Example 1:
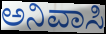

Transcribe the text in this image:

ಅನಿವಾಸಿ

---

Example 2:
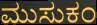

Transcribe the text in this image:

ಮುಸುಕಂ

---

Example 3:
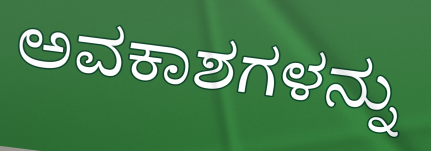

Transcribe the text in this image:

ಅವಕಾಶಗಳನ್ನು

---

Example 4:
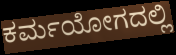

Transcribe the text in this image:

ಕರ್ಮಯೋಗದಲ್ಲಿ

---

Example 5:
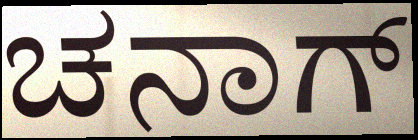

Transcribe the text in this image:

ಚನಾಗ್